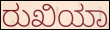
ರುಖಿಯಾ